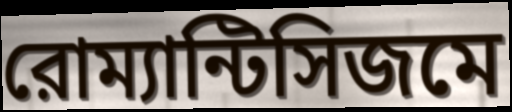
রোম্যান্টিসিজমে